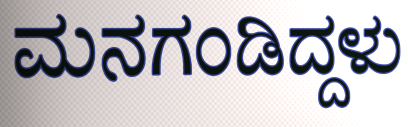
ಮನಗಂಡಿದ್ದಳು